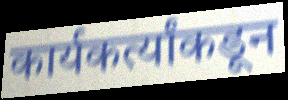
कार्यकर्त्यांकडून